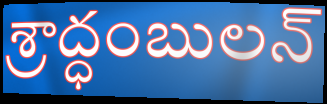
శ్రాద్ధంబులన్